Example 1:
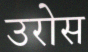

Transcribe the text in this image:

उरोस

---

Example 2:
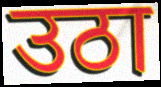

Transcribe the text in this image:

उठा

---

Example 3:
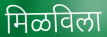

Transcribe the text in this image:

मिळविला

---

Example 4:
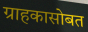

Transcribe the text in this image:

ग्राहकासोबत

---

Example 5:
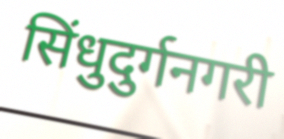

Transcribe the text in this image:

सिंधुदुर्गनगरी